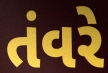
તંવરે